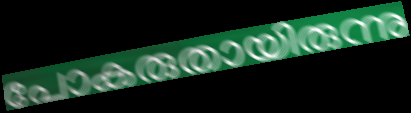
പോകരുതായിരുന്നു